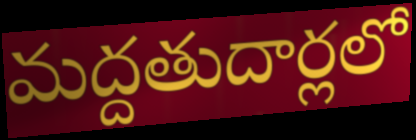
మద్దతుదార్లలో